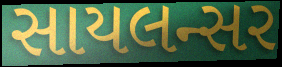
સાયલન્સર